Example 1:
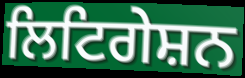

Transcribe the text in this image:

ਲਿਟਿਗੇਸ਼ਨ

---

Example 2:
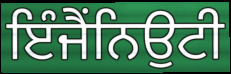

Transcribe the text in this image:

ਇੰਜੈਂਨਿਉਟੀ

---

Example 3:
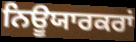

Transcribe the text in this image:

ਨਿਊਯਾਰਕਰਾਂ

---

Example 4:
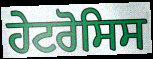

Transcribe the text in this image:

ਹੇਟਰੋਸਿਸ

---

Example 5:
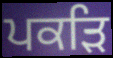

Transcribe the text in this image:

ਪਕੜਿ